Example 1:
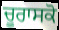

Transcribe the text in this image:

ਚੂਰਾਸਕੋ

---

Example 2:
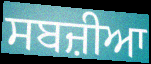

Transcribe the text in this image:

ਸਬਜ਼ੀਆ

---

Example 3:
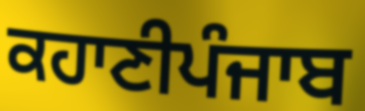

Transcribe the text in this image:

ਕਹਾਣੀਪੰਜਾਬ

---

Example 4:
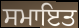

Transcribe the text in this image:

ਸਮਾਇਤ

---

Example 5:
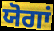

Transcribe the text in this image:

ਯੋਗਾਂ